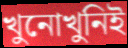
খুনোখুনিই